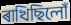
ৰাখিছিলোঁ